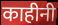
काहीनी